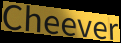
Cheever